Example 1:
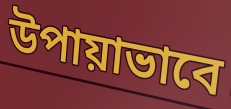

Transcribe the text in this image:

উপায়াভাবে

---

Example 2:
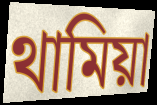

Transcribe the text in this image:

থামিয়া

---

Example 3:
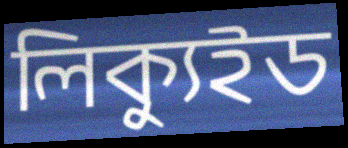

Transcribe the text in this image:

লিক্যুইড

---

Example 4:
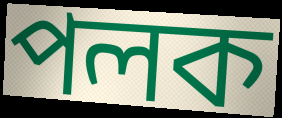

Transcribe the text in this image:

পলক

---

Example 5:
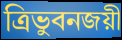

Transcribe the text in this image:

ত্রিভুবনজয়ী